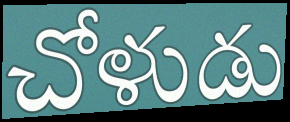
చోళుడు